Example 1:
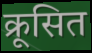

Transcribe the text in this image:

क्रूसित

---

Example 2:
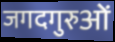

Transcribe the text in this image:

जगदगुरुओं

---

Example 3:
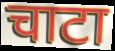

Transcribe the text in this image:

चाटा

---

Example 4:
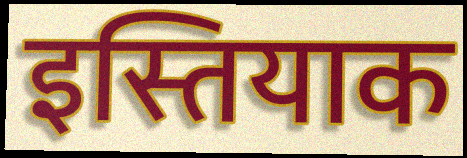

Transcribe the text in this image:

इस्तियाक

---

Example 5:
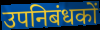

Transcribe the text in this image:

उपनिबंधकों